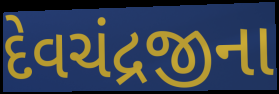
દેવચંદ્રજીના